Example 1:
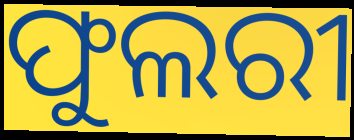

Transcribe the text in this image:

ଫୁଲରୀ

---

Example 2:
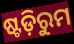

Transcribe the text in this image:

ଷ୍ଟଡ଼ିରୁମ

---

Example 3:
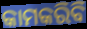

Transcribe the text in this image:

କାମକରିବି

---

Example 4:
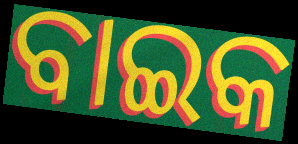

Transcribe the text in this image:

ବାଇକ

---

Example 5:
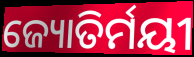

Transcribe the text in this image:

ଜ୍ୟୋତିର୍ମୟୀ